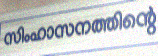
സിംഹാസനത്തിന്റെ